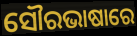
ସୌରଭାଷାରେ